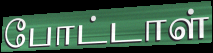
போட்டாள்